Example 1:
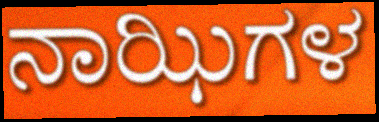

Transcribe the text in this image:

ನಾಝಿಗಳ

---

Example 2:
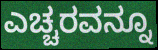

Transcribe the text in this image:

ಎಚ್ಚರವನ್ನೂ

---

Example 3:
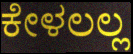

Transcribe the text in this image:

ಕೇಳಲಲ್ಲ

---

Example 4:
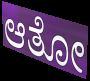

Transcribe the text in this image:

ಆತೋ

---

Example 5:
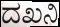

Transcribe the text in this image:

ದಖನಿ